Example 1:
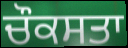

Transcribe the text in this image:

ਚੌਕਸਤਾ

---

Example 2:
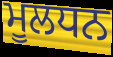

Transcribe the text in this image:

ਮੂਲਧਨ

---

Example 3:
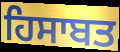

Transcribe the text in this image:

ਹਿਸਾਬਤ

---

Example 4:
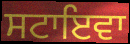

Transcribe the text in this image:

ਸਟਾਇਵਾ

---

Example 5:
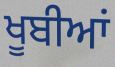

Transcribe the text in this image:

ਖੂਬੀਆਂ